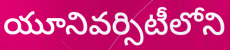
యూనివర్సిటీలోని